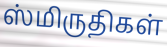
ஸ்மிருதிகள்